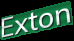
Exton